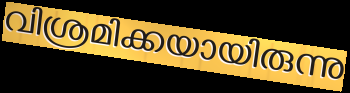
വിശ്രമിക്കയായിരുന്നു